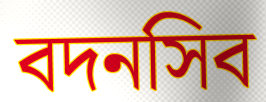
বদনসিব